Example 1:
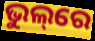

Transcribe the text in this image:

ଭୁଲ୍‌ରେ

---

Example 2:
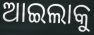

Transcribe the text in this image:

ଆଇଲାକୁ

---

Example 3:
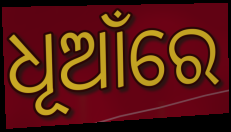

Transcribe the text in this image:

ଧୂଆଁରେ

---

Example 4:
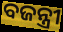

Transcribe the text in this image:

ବଜନ୍ତ୍ରୀ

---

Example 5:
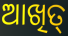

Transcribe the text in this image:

ଆଖିତ୍